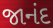
જાનંદ